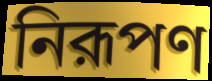
নিরূপণ